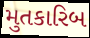
મુતકારિબ